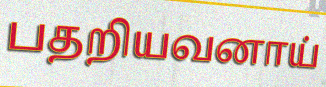
பதறியவனாய்